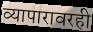
व्यापारावरही